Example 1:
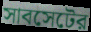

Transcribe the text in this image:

সাবসেটের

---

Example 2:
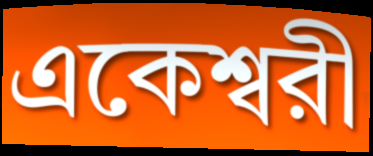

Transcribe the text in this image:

একেশ্বরী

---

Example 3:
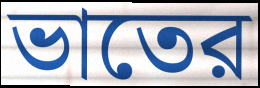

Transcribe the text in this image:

ভাতের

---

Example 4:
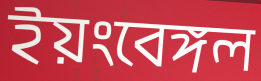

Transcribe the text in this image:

ইয়ংবেঙ্গল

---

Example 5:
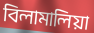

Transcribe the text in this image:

বিলামালিয়া